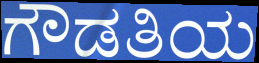
ಗೌಡತಿಯ